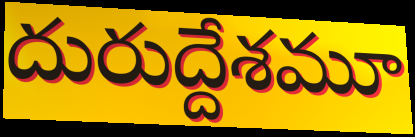
దురుద్దేశమూ